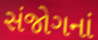
સંજોગનાં